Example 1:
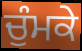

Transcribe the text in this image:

ਚੁੰਮਕੇ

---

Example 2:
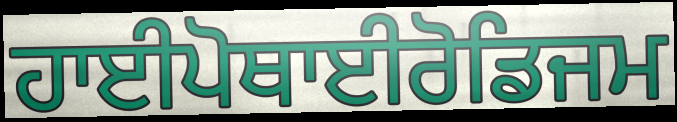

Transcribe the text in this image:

ਹਾਈਪੋਥਾਈਰੋਡਿਜਮ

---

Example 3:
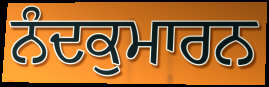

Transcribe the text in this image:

ਨੰਦਕੁਮਾਰਨ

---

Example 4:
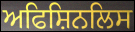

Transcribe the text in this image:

ਅਫਿਸ਼ਿਨਲਿਸ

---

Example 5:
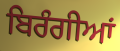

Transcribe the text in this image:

ਬਿਰੰਗੀਆਂ